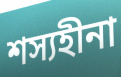
শস্যহীনা